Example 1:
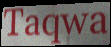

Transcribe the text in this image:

Taqwa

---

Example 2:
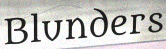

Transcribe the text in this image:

Blunders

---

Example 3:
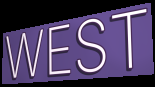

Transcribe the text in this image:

WEST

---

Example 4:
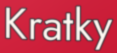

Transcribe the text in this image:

Kratky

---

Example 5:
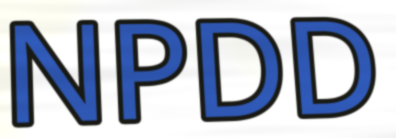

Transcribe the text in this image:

NPDD